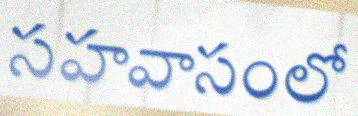
సహవాసంలో